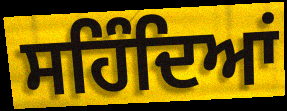
ਸਹਿੰਦਿਆਂ